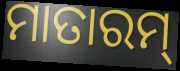
ମାତାରମ୍